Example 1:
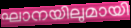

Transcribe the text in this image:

ഘാനയിലുമായി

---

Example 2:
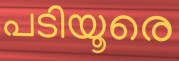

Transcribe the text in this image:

പടിയൂരെ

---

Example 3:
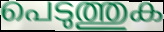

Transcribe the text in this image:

പെടുത്തുക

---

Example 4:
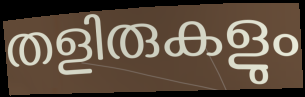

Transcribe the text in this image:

തളിരുകളും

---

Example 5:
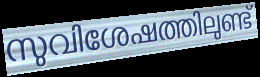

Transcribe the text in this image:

സുവിശേഷത്തിലുണ്ട്